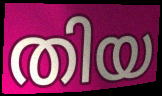
തിയ